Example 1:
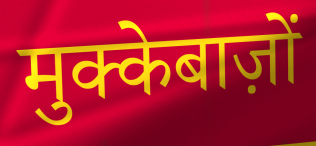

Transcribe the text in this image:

मुक्केबाज़ों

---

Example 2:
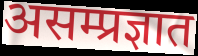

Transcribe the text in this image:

असम्प्रज्ञात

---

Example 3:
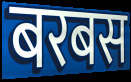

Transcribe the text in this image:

बरबस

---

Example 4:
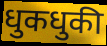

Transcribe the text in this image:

धुकधुकी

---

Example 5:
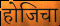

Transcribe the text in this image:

होजिचा